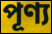
পূণ্য